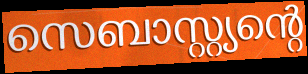
സെബാസ്റ്റ്യന്റെ